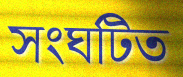
সংঘটিত